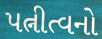
પત્નીત્વનો